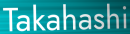
Takahashi